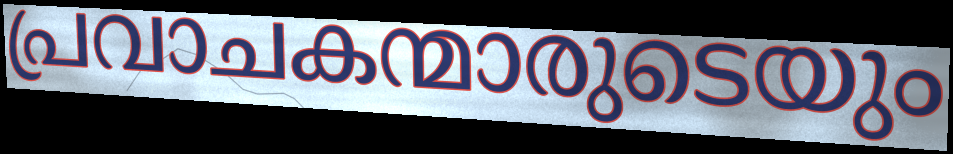
പ്രവാചകന്മാരുടെയും